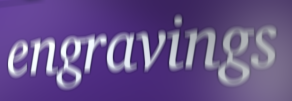
engravings